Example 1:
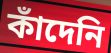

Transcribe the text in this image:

কাঁদেনি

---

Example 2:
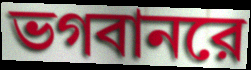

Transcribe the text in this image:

ভগবানরে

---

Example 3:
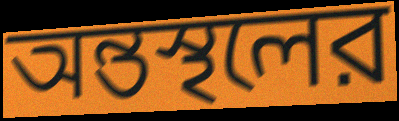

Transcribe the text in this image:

অন্তস্থলের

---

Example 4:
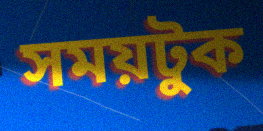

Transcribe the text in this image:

সময়টুক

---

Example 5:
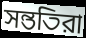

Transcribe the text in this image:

সন্ততিরা